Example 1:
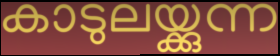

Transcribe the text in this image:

കാടുലയ്ക്കുന്ന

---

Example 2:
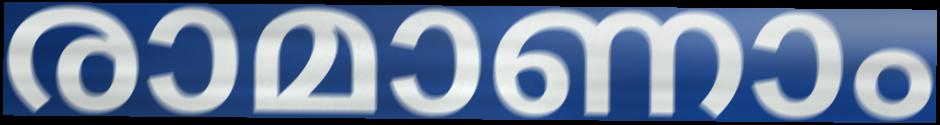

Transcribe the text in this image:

രാമാണാം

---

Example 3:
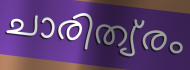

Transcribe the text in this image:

ചാരിത്യ്രം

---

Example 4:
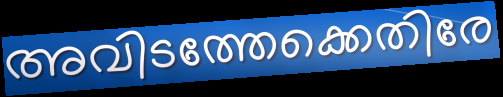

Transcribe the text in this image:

അവിടത്തേക്കെതിരേ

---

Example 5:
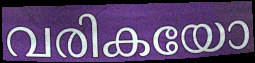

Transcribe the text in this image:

വരികയോ